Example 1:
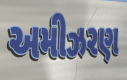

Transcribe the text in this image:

અમીઝરણ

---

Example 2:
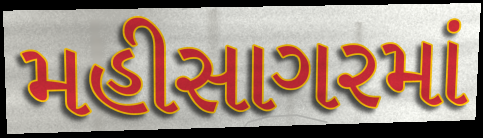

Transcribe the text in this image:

મહીસાગરમાં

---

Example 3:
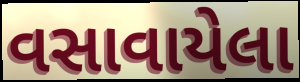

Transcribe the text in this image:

વસાવાયેલા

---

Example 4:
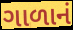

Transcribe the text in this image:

ગાળાનં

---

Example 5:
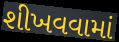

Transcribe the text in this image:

શીખવવામાં